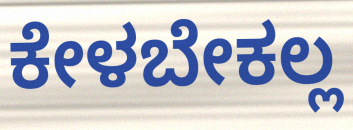
ಕೇಳಬೇಕಲ್ಲ